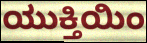
ಯುಕ್ತಿಯಿಂ